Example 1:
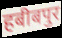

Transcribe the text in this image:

हबीबपुर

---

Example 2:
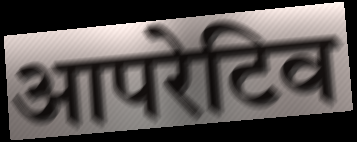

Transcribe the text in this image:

आपरेटिव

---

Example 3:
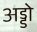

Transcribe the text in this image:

अड्डो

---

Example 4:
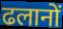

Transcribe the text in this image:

ढलानों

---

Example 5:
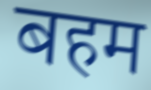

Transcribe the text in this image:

बहम